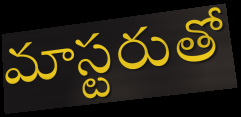
మాస్టరుతో